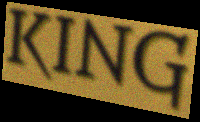
KING